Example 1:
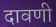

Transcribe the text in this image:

दावणी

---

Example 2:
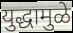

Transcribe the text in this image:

युद्धामुळे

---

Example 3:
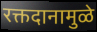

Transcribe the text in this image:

रक्तदानामुळे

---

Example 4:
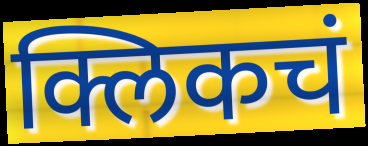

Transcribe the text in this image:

क्लिकचं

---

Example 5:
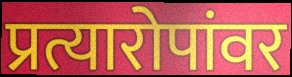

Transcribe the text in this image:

प्रत्यारोपांवर